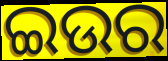
ଇଉର